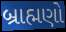
બ્રાહ્મણો